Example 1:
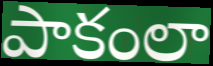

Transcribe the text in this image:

పాకంలా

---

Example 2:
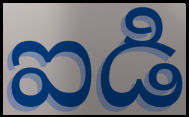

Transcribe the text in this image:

ఐడి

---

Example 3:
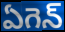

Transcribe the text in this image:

ఏగెన్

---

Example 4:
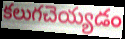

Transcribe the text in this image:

కలుగచెయ్యడం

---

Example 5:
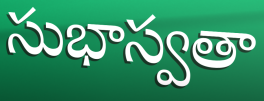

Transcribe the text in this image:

సుభాస్వతా